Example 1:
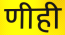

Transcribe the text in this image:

णीही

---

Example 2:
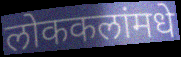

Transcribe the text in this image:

लोककलांमधे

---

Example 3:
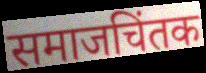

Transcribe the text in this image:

समाजचिंतक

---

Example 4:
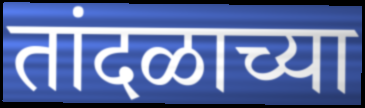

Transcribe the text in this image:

तांदळाच्या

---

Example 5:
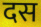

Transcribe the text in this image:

दस